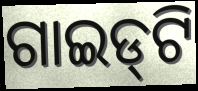
ଗାଇଡ୍‌ଟି